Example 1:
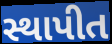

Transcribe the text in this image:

સ્થાપીત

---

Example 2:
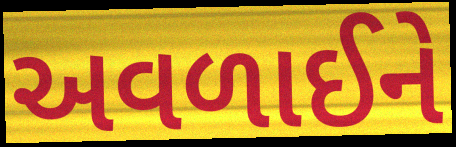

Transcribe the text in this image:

અવળાઈને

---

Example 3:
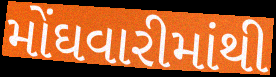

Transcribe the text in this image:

મોંઘવારીમાંથી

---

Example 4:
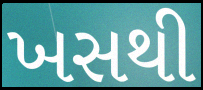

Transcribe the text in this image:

ખસથી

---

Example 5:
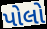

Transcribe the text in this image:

પોલો